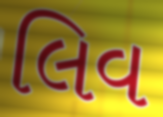
લિવ